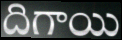
దిగాయి